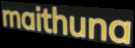
maithuna